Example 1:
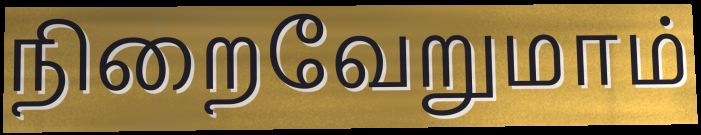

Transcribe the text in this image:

நிறைவேறுமாம்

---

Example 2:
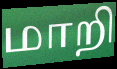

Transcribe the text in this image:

மாறி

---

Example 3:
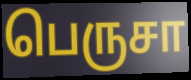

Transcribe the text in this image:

பெருசா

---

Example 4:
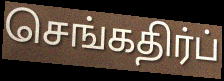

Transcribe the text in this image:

செங்கதிர்ப்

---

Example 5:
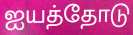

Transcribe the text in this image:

ஐயத்தோடு